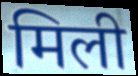
मिली